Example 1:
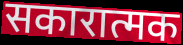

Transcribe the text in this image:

सकारात्मक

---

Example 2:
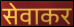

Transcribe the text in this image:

सेवाकर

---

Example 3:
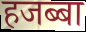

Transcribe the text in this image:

हजब्बा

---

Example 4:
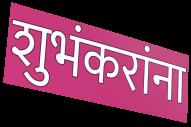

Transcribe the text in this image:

शुभंकरांना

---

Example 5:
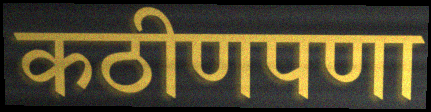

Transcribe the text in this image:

कठीणपणा